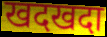
खदखदा